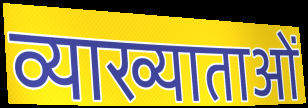
व्याख्याताओं